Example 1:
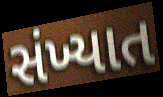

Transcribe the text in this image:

સંખ્યાત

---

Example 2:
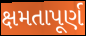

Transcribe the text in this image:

ક્ષમતાપૂર્ણ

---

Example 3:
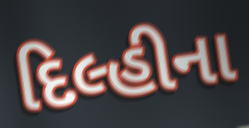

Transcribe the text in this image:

દિલ્હીના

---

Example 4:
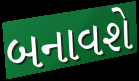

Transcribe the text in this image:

બનાવશે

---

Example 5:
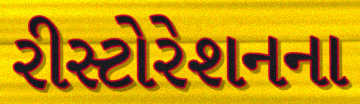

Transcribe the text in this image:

રીસ્ટોરેશનના